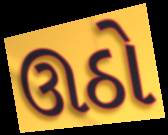
ઊઠો